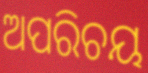
ଅପରିଚୟ